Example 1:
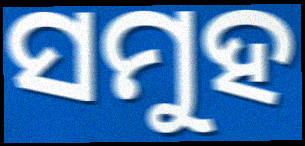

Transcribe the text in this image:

ସମୁହ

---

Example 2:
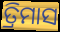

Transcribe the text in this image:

ତ୍ରିମାସ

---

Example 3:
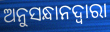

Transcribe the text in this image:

ଅନୁସନ୍ଧାନଦ୍ୱାରା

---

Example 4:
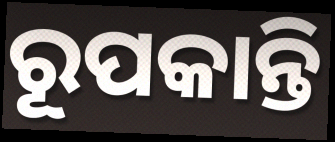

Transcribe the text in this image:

ରୂପକାନ୍ତି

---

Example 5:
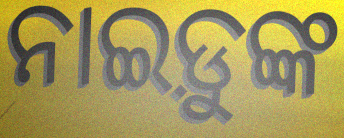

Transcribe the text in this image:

ନାଇଡ଼ୁଙ୍କ